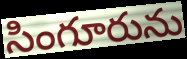
సింగూరును